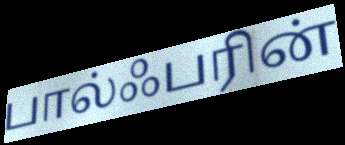
பால்ஃபரின்